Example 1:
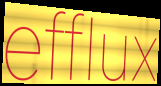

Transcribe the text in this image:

efflux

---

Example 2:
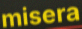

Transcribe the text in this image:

misera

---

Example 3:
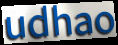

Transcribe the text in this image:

udhao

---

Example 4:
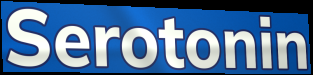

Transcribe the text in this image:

Serotonin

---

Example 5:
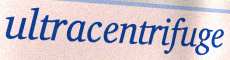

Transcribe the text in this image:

ultracentrifuge